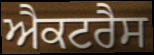
ਐਕਟਰੈਸ